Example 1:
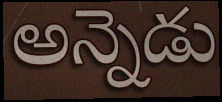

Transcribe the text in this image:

అన్నెడు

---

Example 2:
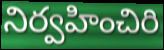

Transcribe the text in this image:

నిర్వహించిరి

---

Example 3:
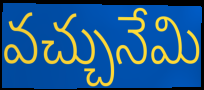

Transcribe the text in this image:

వచ్చునేమి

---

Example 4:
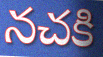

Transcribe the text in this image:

నచకి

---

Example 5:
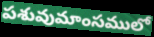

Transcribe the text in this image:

పశువుమాంసములో